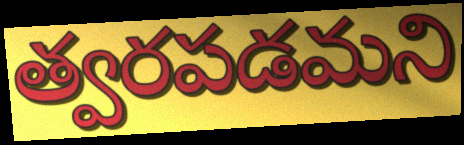
త్వరపడమని